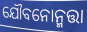
ଯୌବନୋନ୍ମତ୍ତା